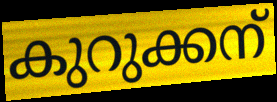
കുറുക്കന്